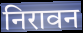
निरावन